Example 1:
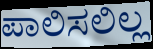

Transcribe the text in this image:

ಪಾಲಿಸಲಿಲ್ಲ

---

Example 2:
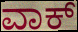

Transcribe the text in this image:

ವಾಕ್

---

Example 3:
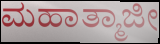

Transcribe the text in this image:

ಮಹಾತ್ಮಾಜೀ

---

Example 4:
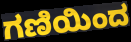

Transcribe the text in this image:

ಗಣಿಯಿಂದ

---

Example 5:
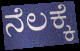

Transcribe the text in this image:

ನೆಲಕ್ಕೆ